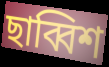
ছাব্বিশ